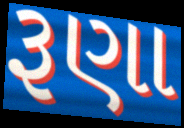
રૂણા